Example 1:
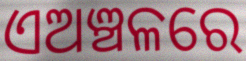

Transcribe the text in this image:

ଏଅଞ୍ଚଳରେ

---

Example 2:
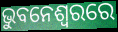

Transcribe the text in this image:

ଭୁବନେଶ୍ବରରେ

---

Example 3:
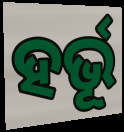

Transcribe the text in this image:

ହର୍ଭୂ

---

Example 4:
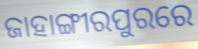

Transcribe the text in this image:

ଜାହାଙ୍ଗୀରପୁରରେ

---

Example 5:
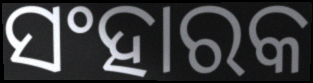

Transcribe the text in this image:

ସଂହାରକ